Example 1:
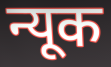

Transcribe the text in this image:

न्यूक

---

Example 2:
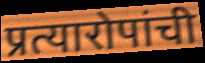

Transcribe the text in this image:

प्रत्यारोपांची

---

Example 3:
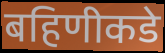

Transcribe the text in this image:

बहिणीकडे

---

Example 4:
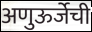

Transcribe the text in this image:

अणुऊर्जेची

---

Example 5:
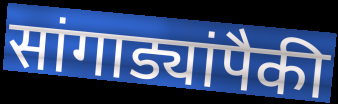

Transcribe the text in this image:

सांगाड्यांपैकी